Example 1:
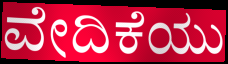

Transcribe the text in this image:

ವೇದಿಕೆಯು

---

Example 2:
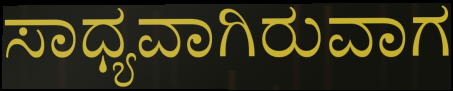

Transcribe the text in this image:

ಸಾಧ್ಯವಾಗಿರುವಾಗ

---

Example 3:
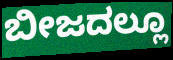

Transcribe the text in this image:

ಬೀಜದಲ್ಲೂ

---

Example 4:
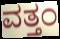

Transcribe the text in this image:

ವತ್ತಂ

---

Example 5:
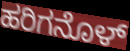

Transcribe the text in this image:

ಹರಿಗನೊಳ್